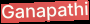
Ganapathi